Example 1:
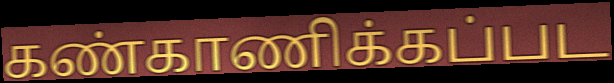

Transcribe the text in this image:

கண்காணிக்கப்பட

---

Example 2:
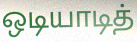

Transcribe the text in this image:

ஒடியாடித்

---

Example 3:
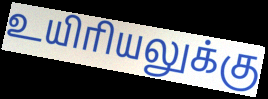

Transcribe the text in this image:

உயிரியலுக்கு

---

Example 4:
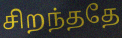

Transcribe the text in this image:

சிறந்ததே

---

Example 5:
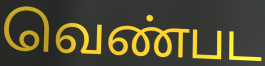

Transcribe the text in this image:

வெண்பட